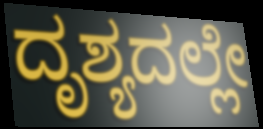
ದೃಶ್ಯದಲ್ಲೇ